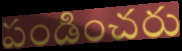
పండించరు